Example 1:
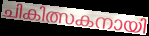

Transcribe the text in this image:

ചികിത്സകനായി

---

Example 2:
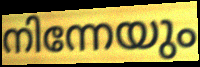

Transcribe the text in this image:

നിന്നേയും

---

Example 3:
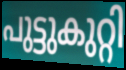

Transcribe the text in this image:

പുട്ടുകുറ്റി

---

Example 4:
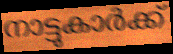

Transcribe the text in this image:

നാട്ടുകാർക്ക്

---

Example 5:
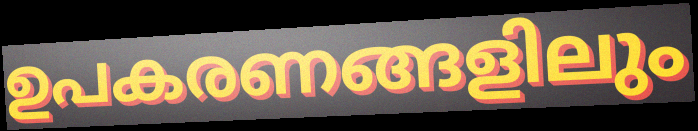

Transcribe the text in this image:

ഉപകരണങ്ങളിലും